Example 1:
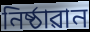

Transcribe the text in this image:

নিষ্ঠাৱান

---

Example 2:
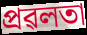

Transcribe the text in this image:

প্ৰৱলতা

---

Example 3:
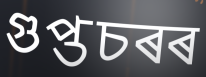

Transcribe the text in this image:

গুপ্তচৰৰ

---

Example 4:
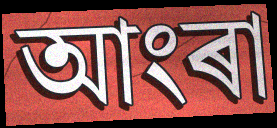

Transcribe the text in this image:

আংৰা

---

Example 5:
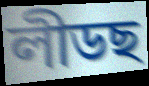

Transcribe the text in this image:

লীডছ